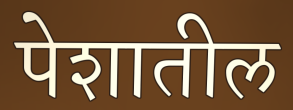
पेशातील